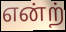
என்ற்